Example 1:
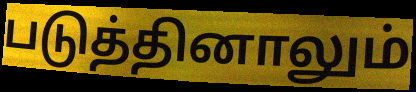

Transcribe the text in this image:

படுத்தினாலும்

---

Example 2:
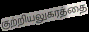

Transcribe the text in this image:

குற்றியலுகரத்தை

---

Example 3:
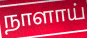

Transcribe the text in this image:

நாளாய்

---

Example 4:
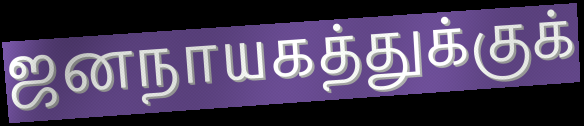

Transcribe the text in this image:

ஜனநாயகத்துக்குக்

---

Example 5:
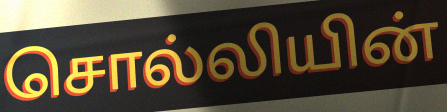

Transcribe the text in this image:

சொல்லியின்